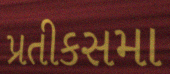
પ્રતીકસમા